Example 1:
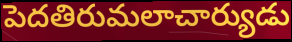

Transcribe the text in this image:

పెదతిరుమలాచార్యుడు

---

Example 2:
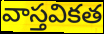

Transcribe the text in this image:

వాస్తవికత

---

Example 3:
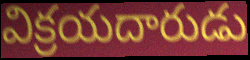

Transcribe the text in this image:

విక్రయదారుడు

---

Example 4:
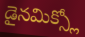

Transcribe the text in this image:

డైనమిక్స్లో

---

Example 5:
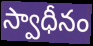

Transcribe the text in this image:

స్వాధీనం